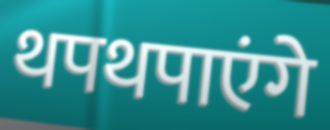
थपथपाएंगे